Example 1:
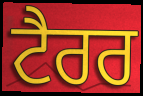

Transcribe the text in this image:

ਟੈਰਰ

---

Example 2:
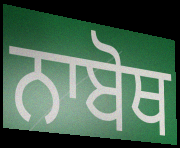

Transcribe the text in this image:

ਨਾਬੋਥ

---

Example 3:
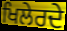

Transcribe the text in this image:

ਖਿਲੇਰਦੇ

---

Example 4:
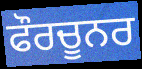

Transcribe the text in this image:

ਫੌਰਚੂਨਰ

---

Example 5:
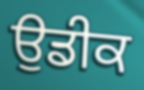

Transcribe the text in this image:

ਉਡੀਕ